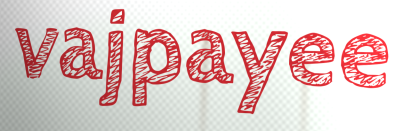
vajpayee